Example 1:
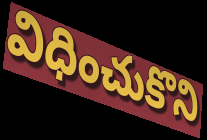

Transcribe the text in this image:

విధించుకొని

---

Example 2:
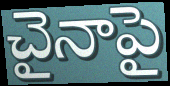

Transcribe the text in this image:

చైనాపై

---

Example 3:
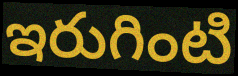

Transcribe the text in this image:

ఇరుగింటి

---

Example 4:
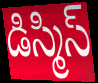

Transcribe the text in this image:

డిస్మిస్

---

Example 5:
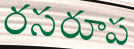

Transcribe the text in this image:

రసరూప